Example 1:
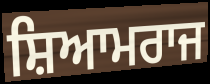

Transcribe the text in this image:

ਸ਼ਿਆਮਰਾਜ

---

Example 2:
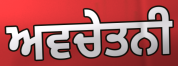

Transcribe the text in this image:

ਅਵਚੇਤਨੀ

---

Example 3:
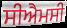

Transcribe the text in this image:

ਸੀਐਮਸੀ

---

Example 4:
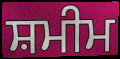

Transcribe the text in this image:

ਸ਼ਮੀਮ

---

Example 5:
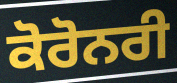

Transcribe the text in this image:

ਕੋਰੋਨਰੀ